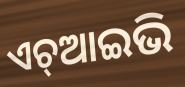
ଏଚ୍ଆଇଭି